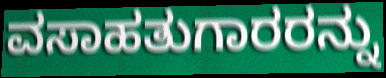
ವಸಾಹತುಗಾರರನ್ನು